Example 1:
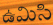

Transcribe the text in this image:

ఉమిసి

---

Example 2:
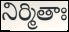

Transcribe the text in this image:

నిర్మితాః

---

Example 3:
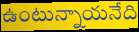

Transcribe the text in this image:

ఉంటున్నాయనేది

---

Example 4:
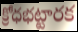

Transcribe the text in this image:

క్రోధభట్టారక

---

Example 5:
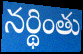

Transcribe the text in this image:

నర్థింతు